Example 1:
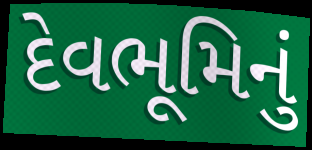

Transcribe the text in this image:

દેવભૂમિનું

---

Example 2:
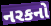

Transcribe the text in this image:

નરકનો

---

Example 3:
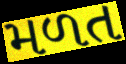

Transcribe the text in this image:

મળત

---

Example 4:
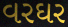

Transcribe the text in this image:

વરઘર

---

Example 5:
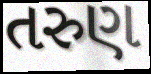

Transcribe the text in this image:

તરુણ